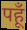
पहूँ